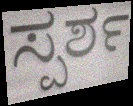
ಸ್ಪರ್ಶ